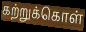
கற்றுக்கொள்